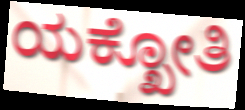
ಯಕ್ಖೋತಿ